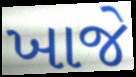
ખાજે